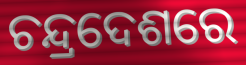
ଚନ୍ଦ୍ରଦେଶରେ